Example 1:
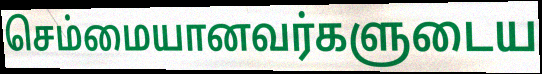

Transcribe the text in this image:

செம்மையானவர்களுடைய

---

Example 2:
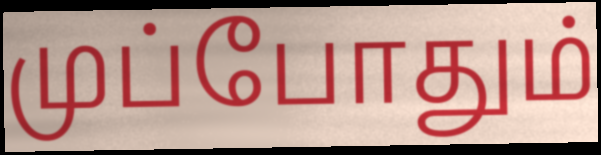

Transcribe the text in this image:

முப்போதும்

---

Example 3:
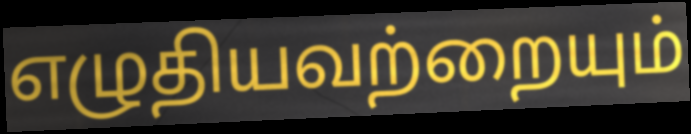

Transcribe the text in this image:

எழுதியவற்றையும்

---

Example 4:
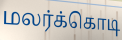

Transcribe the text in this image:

மலர்க்கொடி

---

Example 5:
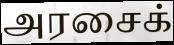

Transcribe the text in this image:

அரசைக்